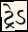
ટ્રેડ